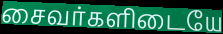
சைவர்களிடையே